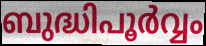
ബുദ്ധിപൂർവ്വം